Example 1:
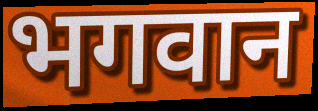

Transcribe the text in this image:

भगवान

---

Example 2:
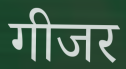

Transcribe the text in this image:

गीजर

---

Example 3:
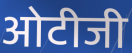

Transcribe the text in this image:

ओटीजी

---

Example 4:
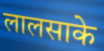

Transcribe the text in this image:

लालसाके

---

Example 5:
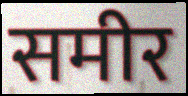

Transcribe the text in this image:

समीर